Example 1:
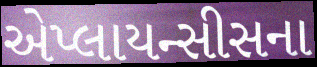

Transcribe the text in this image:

એપ્લાયન્સીસના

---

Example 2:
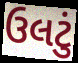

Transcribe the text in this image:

ઉલટું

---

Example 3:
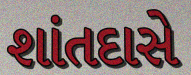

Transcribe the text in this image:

શાંતદાસે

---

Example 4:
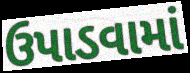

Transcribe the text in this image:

ઉપાડવામાં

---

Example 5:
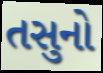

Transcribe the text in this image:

તસુનો